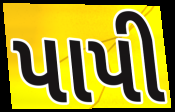
પાપી